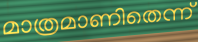
മാത്രമാണിതെന്ന്